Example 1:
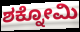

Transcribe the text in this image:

ಶಕ್ನೋಮಿ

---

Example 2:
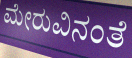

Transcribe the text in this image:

ಮೇರುವಿನಂತೆ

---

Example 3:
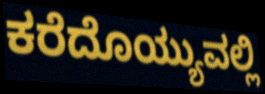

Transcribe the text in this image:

ಕರೆದೊಯ್ಯುವಲ್ಲಿ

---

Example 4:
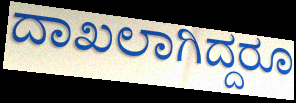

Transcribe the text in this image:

ದಾಖಲಾಗಿದ್ದರೂ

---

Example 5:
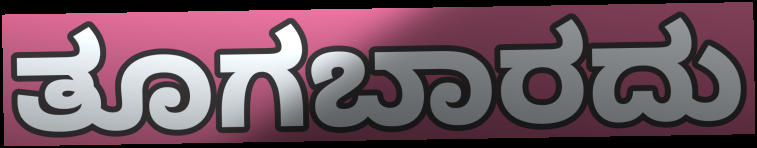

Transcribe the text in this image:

ತೂಗಬಾರದು